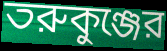
তরুকুঞ্জের